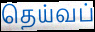
தெய்வப்